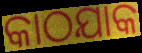
କାଠଯାକ